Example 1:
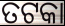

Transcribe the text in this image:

ତଟକା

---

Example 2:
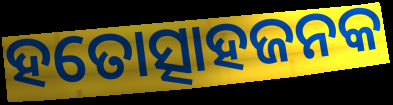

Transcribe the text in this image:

ହତୋତ୍ସାହଜନକ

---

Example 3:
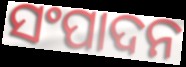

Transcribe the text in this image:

ସଂପାଦନ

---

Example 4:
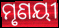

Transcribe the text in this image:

ମୃଣୟୀ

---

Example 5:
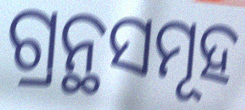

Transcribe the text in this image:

ଗ୍ରନ୍ଥସମୂହ